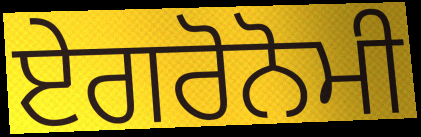
ਏਗਰੋਨੋਮੀ